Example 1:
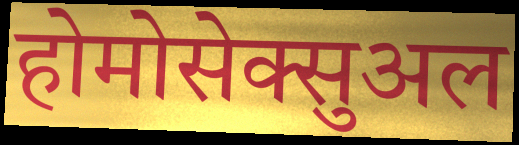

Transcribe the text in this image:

होमोसेक्सुअल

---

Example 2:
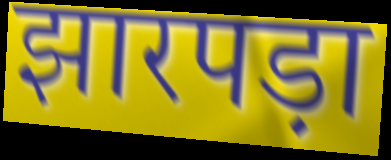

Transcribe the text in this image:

झारपड़ा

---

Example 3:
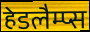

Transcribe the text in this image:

हेडलैम्प्स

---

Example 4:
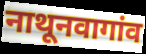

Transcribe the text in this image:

नाथूनवागांव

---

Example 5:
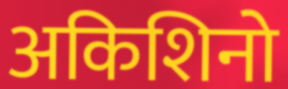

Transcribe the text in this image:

अकिशिनो